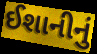
ઈશાનીનું